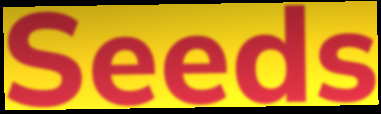
Seeds